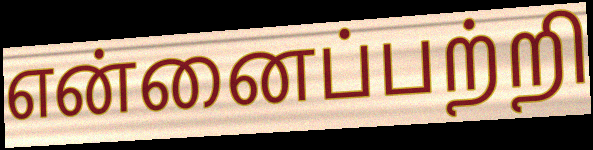
என்னைப்பற்றி